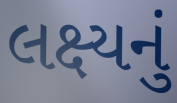
લક્ષ્યનું